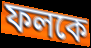
ফলকে